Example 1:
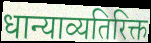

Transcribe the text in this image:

धान्याव्यतिरिक्त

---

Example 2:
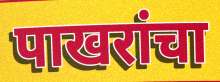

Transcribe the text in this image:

पाखरांचा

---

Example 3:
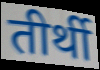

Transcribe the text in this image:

तीर्थी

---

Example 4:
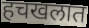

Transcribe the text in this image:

हचखलात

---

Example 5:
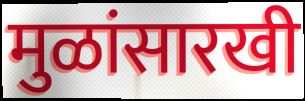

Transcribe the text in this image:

मुळांसारखी